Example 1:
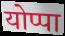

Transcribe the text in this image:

योप्पा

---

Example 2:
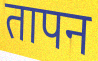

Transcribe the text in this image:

तापन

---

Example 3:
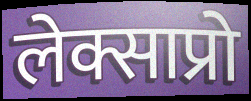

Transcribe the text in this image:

लेक्साप्रो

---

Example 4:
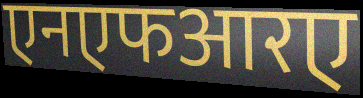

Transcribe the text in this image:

एनएफआरए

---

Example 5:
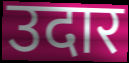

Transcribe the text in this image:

उदार